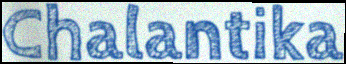
Chalantika